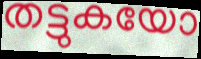
തട്ടുകയോ